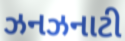
ઝનઝનાટી